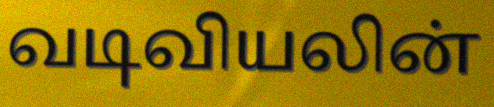
வடிவியலின்